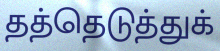
தத்தெடுத்துக்